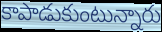
కాపాడుకుంటున్నారు